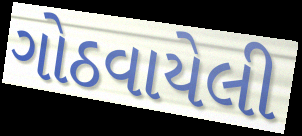
ગોઠવાયેલી